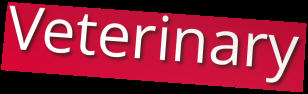
Veterinary